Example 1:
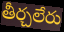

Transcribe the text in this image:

తీర్చలేరు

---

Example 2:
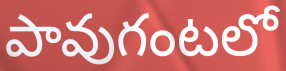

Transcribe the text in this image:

పావుగంటలో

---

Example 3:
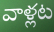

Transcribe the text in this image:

వాళ్లట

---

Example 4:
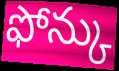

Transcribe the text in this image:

ఫోన్కు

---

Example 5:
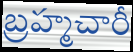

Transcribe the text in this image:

బ్రహ్మచారీ